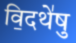
वि॒दथे॑षु